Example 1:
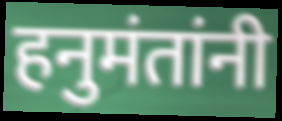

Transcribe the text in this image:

हनुमंतांनी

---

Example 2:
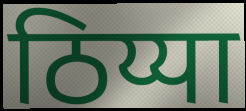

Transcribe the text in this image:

ठिय्या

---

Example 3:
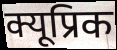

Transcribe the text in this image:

क्यूप्रिक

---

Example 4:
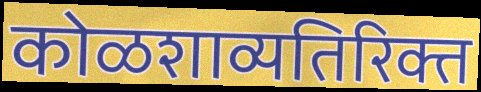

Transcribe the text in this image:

कोळशाव्यतिरिक्त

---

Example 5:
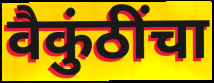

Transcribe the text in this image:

वैकुंठींचा